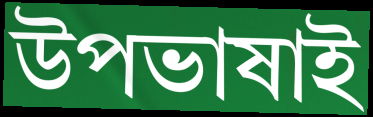
উপভাষাই